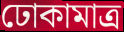
ঢোকামাত্র